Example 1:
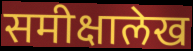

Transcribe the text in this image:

समीक्षालेख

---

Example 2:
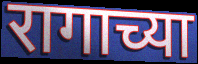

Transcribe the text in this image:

रागाच्या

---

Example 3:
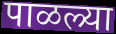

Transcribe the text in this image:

पाळल्या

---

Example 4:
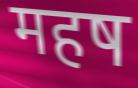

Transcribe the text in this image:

महष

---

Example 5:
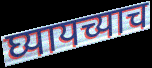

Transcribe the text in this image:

घ्यायच्याच